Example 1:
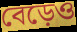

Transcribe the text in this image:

বেড়েও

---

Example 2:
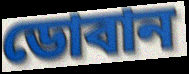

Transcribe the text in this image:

ডোবান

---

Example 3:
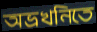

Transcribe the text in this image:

অভ্রখনিতে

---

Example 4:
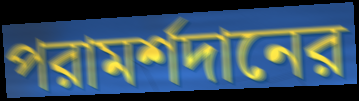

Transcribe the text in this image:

পরামর্শদানের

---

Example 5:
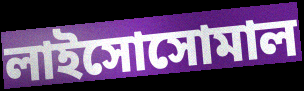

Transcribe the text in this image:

লাইসোসোমাল